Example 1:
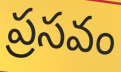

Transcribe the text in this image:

ప్రసవం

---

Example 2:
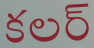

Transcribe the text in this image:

కలర్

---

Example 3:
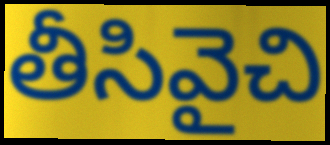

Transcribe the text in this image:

తీసివైచి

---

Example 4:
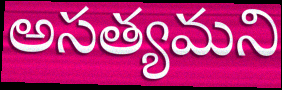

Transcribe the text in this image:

అసత్యమని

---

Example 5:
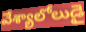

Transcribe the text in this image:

వేశ్యాలోలుడై